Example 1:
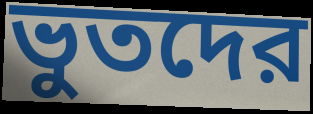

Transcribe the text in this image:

ভুতদের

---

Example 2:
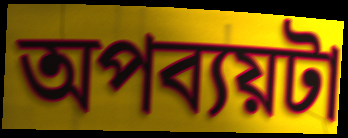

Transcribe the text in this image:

অপব্যয়টা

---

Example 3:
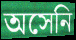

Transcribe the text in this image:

অসেনি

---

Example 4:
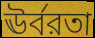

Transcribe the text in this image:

ঊর্বরতা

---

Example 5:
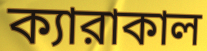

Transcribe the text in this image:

ক্যারাকাল